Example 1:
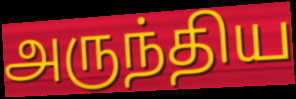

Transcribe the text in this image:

அருந்திய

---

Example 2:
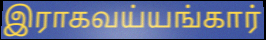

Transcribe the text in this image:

இராகவய்யங்கார்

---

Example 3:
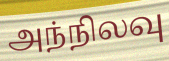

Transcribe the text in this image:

அந்நிலவு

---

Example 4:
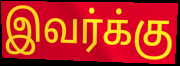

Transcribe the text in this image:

இவர்க்கு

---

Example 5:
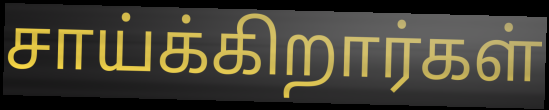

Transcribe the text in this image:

சாய்க்கிறார்கள்